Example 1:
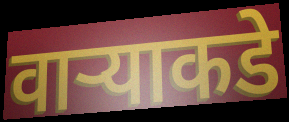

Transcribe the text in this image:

वाऱ्याकडे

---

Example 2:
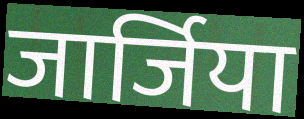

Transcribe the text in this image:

जार्जिया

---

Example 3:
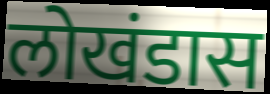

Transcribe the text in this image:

लोखंडास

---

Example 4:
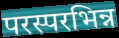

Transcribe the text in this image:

परस्परभिन्न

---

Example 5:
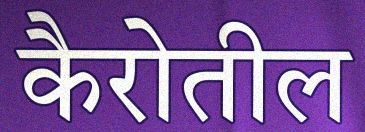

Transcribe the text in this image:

कैरोतील